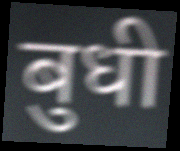
बुधी